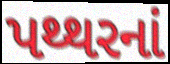
પથ્થરનાં